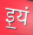
इ॒यं